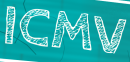
ICMV